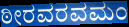
ಠೀರವರವಮಂ